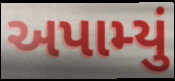
અપામ્યું